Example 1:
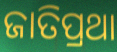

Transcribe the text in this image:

ଜାତିପ୍ରଥା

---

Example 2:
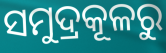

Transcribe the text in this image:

ସମୁଦ୍ରକୂଳରୁ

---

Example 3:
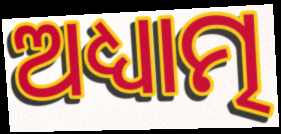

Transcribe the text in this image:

ଅଧ୍ୟାତ୍ମ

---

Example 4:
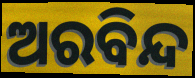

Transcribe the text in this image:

ଅରବିନ୍ଦ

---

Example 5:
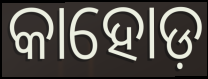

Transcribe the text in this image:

କାହୋଡ଼